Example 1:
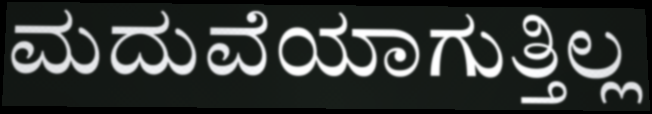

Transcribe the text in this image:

ಮದುವೆಯಾಗುತ್ತಿಲ್ಲ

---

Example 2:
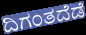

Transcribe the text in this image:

ದಿಗಂತದೆಡೆ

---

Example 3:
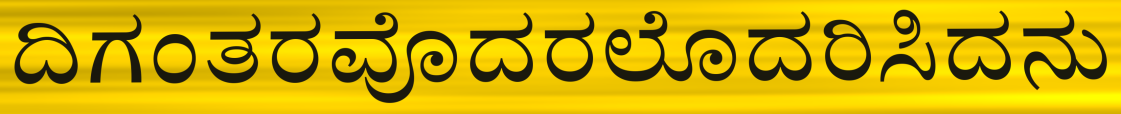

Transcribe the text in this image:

ದಿಗಂತರವೊದರಲೊದರಿಸಿದನು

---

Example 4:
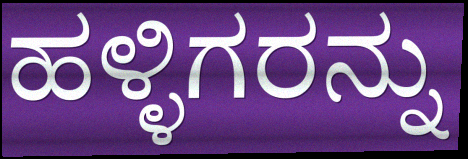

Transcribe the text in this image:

ಹಳ್ಳಿಗರನ್ನು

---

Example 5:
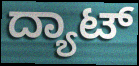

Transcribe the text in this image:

ದ್ಯಾಟ್